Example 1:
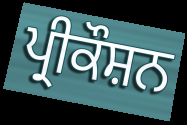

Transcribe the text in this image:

ਪ੍ਰੀਕੌਸ਼ਨ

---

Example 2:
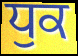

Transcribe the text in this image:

ਧੁਕ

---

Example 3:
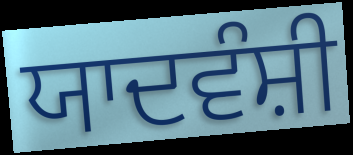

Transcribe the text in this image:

ਯਾਦਵੰਸ਼ੀ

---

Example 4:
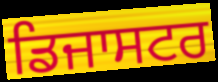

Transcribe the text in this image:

ਡਿਜਾਸਟਰ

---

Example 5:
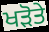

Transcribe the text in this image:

ਖੜੋਤੇ